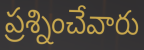
ప్రశ్నించేవారు